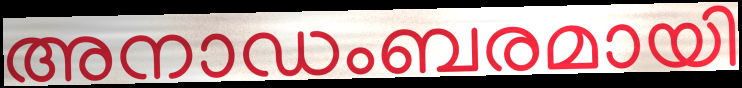
അനാഡംബരമായി